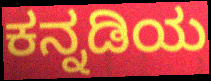
ಕನ್ನಡಿಯ